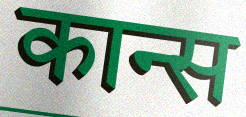
कान्स